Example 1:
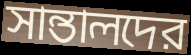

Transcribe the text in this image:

সান্তালদের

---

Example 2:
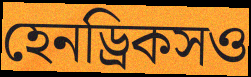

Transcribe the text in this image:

হেনড্রিকসও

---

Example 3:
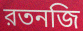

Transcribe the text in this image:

রতনজি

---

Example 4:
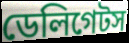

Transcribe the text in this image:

ডেলিগেটস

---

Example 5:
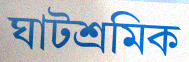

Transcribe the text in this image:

ঘাটশ্রমিক